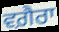
ਵਗ਼ੈਰਾ